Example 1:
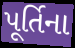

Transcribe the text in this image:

પૂર્તિના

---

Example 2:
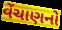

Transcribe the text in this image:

વેંચાણનો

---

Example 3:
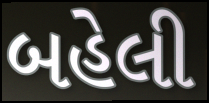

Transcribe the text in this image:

બહેલી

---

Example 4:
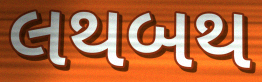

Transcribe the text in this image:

લથબથ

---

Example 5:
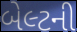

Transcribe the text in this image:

બેલ્ટની